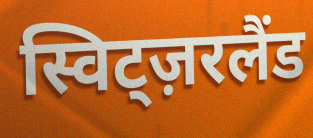
स्विट्ज़रलैंड